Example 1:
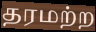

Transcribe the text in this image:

தரமற்ற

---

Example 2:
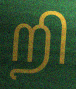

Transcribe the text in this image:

றி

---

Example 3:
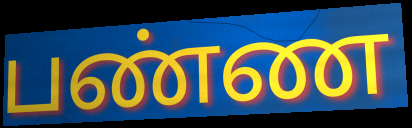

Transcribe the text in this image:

பண்ண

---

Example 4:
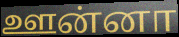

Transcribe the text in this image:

ஊன்னா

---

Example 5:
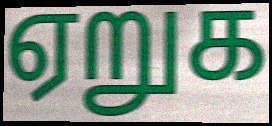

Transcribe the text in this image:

ஏறுக